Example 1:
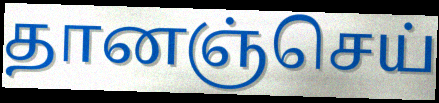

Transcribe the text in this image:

தானஞ்செய்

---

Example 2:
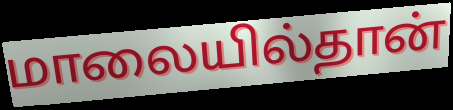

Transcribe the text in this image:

மாலையில்தான்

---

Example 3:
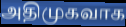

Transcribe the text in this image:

அதிமுகவாக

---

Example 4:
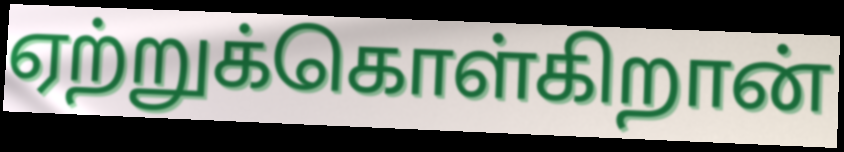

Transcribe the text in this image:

ஏற்றுக்கொள்கிறான்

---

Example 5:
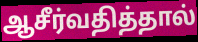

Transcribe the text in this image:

ஆசீர்வதித்தால்